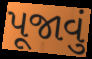
પૂજાવું